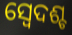
ସ୍ବେଦଶ୍ଚ